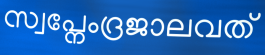
സ്വപ്നേംദ്രജാലവത്